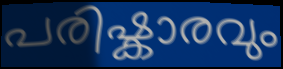
പരിഷ്കാരവും